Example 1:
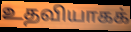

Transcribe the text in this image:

உதவியாகக்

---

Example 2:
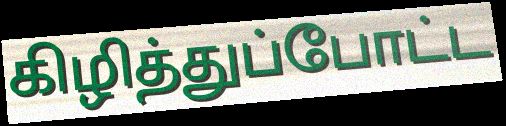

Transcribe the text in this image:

கிழித்துப்போட்ட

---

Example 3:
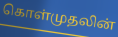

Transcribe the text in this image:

கொள்முதலின்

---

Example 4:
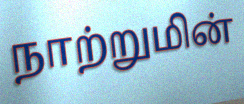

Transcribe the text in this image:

நாற்றுமின்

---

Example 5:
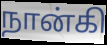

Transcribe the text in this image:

நான்கி